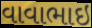
વાવાભાઇ